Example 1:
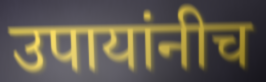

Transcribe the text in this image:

उपायांनीच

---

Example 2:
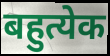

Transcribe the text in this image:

बहुत्येक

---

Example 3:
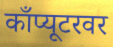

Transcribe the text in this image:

काँप्यूटरवर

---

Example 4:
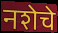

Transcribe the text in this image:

नशेचे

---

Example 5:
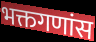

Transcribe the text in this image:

भक्तगणांस